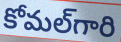
కోమల్‌గారి